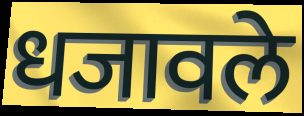
धजावले